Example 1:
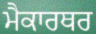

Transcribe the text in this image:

ਮੈਕਾਰਥਰ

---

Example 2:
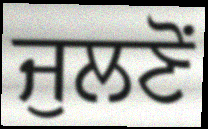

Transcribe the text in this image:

ਜੁਲਣੋਂ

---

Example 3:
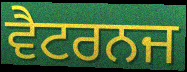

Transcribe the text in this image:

ਵੈਟਰਨਜ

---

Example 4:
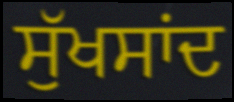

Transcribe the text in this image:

ਸੁੱਖਸਾਂਦ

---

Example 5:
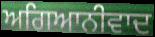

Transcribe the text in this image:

ਅਗਿਆਨੀਵਾਦ